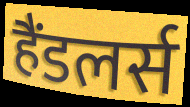
हैंडलर्स